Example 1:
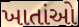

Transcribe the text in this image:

ખાતાંઓ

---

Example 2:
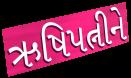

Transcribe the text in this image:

ઋષિપત્નીને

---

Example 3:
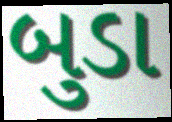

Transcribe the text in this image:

બુડા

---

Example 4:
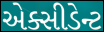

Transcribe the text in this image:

એક્સીડેન્ટ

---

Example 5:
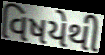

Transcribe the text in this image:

વિષયેથી